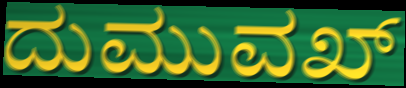
ದುಮುವಖ್